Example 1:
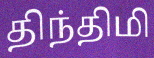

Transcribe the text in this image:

திந்திமி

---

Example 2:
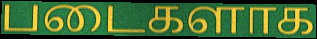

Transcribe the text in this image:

படைகளாக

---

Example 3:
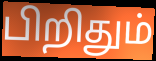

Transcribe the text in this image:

பிறிதும்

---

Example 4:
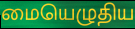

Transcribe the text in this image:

மையெழுதிய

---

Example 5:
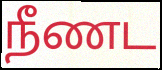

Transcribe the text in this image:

நீணட